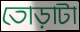
তোড়াটা